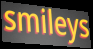
smileys